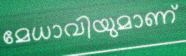
മേധാവിയുമാണ്